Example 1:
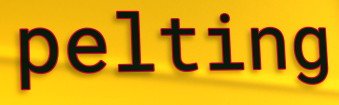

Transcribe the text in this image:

pelting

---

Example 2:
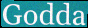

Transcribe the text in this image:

Godda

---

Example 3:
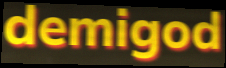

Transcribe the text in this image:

demigod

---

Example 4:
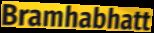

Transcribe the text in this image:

Bramhabhatt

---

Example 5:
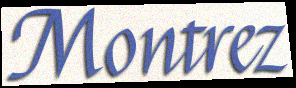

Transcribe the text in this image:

Montrez